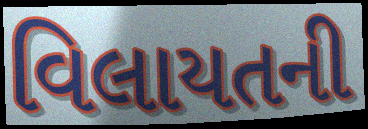
વિલાયતની